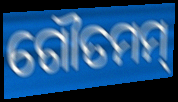
ଗୌତମମ୍